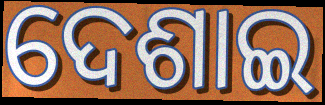
ଦେଶାଇ